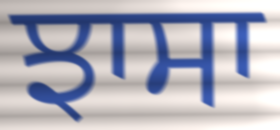
ਝਾਸਾ